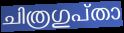
ചിത്രഗുപ്‌താ